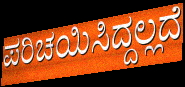
ಪರಿಚಯಿಸಿದ್ದಲ್ಲದೆ